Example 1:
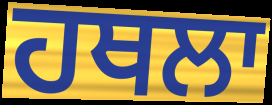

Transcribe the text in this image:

ਹਥਲਾ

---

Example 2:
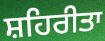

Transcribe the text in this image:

ਸ਼ਹਿਰੀਤਾ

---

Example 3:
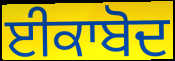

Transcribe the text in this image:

ਈਕਾਬੋਦ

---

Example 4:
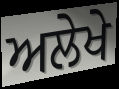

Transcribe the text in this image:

ਅਲੇਖੇ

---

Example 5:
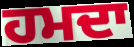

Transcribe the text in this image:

ਹਮਦਾ